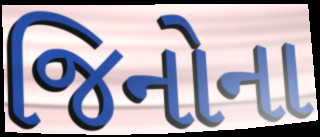
જિનોના